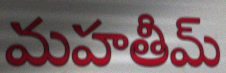
మహతీమ్